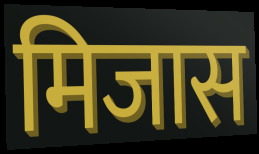
मिजास